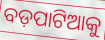
ବଡ଼ପାଟିଆକୁ